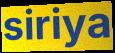
siriya